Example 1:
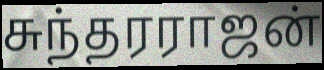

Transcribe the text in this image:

சுந்தரராஜன்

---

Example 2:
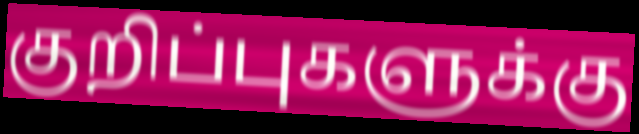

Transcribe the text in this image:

குறிப்புகளுக்கு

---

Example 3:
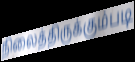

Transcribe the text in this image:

நிலைத்திருக்கும்படி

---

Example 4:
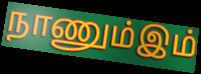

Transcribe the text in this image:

நாணும்இம்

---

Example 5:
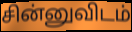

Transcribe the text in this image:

சின்னுவிடம்